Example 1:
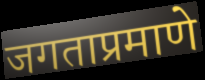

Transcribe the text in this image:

जगताप्रमाणे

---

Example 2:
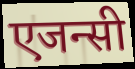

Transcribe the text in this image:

एजन्सी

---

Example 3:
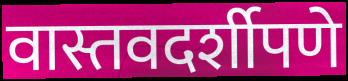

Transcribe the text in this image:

वास्तवदर्शीपणे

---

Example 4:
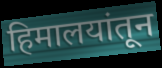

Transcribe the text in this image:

हिमालयांतून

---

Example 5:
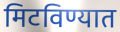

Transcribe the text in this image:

मिटविण्यात